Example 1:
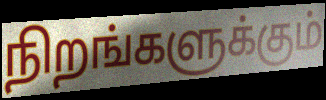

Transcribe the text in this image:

நிறங்களுக்கும்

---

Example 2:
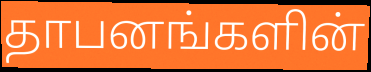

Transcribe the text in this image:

தாபனங்களின்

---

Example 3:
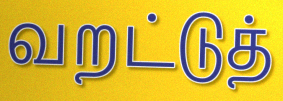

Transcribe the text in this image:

வறட்டுத்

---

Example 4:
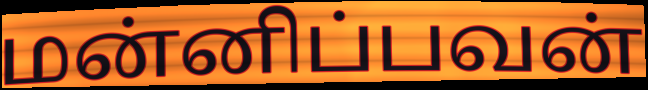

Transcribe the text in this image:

மன்னிப்பவன்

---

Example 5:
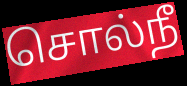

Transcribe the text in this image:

சொல்நீ